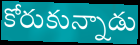
కోరుకున్నాడు